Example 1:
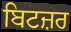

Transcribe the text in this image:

ਬਿਟਜ਼ਰ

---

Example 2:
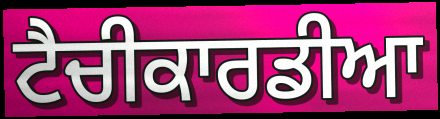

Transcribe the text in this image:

ਟੈਚੀਕਾਰਡੀਆ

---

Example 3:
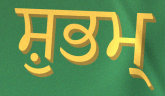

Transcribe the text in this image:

ਸ਼ੁਭਮ੍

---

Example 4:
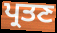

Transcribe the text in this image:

ਪ੍ਰਤਣ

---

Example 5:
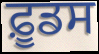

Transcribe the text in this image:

ਫ਼ੂਡਸ